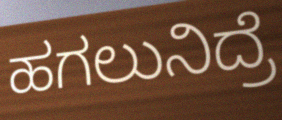
ಹಗಲುನಿದ್ರೆ